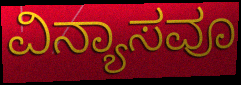
ವಿನ್ಯಾಸವೂ